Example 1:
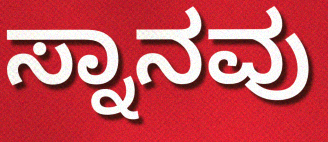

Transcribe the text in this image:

ಸ್ನಾನವು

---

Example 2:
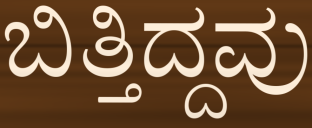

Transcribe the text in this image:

ಬಿತ್ತಿದ್ದವು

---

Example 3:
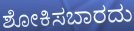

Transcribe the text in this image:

ಶೋಕಿಸಬಾರದು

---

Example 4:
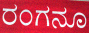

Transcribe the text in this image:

ರಂಗನೂ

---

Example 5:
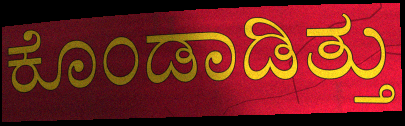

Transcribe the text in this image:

ಕೊಂಡಾಡಿತ್ತು